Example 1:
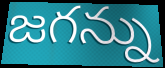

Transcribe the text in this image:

జగన్ను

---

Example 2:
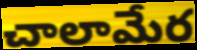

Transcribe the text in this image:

చాలామేర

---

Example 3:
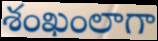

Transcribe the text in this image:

శంఖంలాగా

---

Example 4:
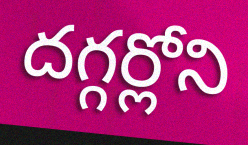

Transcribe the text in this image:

దగ్గర్లోని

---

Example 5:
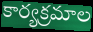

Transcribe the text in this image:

కార్యక్రమాల